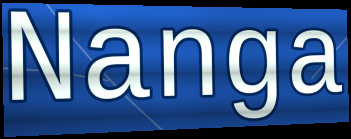
Nanga